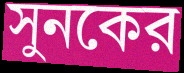
সুনকের